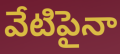
వేటిపైనా